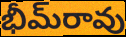
భీమ్‌రావు